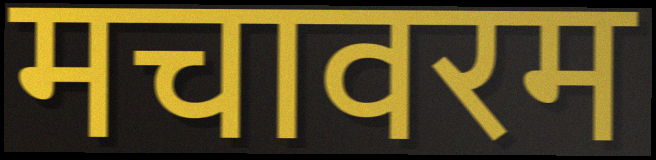
मचावरम